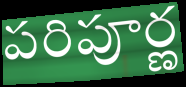
పరిపూర్ణ